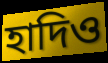
হাদিও